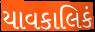
યાવકાલિકં